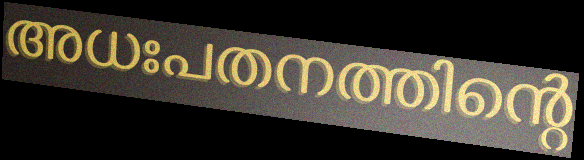
അധഃപതനത്തിന്റെ